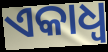
ଏକାଧ୍ଵ